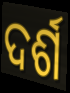
ଦର୍ଶ